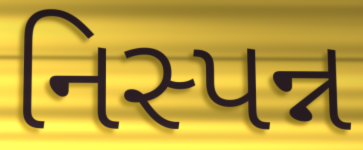
નિસ્પન્ન